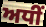
ਅਧੀਂ